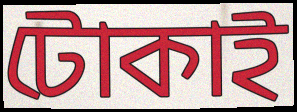
টোকাই